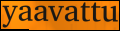
yaavattu